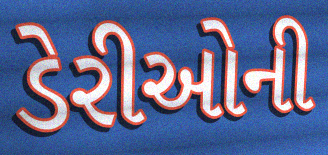
ડેરીઓની